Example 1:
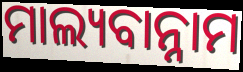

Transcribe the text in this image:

ମାଲ୍ୟବାନ୍ନାମ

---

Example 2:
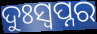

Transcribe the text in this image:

ଦୁଃସ୍ବପ୍ନର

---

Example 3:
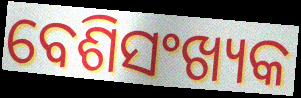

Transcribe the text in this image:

ବେଶିସଂଖ୍ୟକ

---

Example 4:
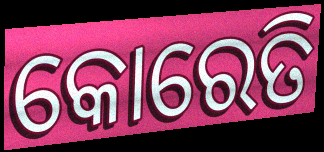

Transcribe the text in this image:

କୋରେତି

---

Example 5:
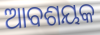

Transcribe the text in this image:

ଆବଶୟକ